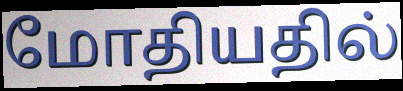
மோதியதில்